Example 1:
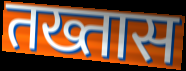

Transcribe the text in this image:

तख्तास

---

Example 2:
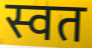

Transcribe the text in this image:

स्वत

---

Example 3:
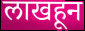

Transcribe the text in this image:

लाखहून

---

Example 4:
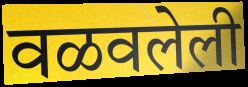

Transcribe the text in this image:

वळवलेली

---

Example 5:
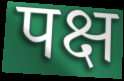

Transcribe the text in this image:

पक्ष